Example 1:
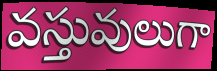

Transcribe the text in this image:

వస్తువులుగా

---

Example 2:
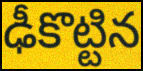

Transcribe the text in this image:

ఢీకొట్టిన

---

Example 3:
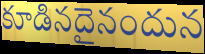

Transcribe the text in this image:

కూడినదైనందున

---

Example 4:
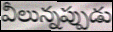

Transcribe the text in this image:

వీలున్నప్పుడు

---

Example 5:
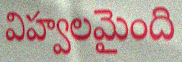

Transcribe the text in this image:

విహ్వలమైంది